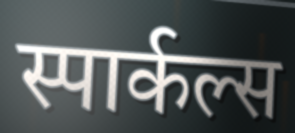
स्पार्कल्स